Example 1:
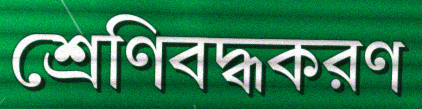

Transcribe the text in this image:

শ্রেণিবদ্ধকরণ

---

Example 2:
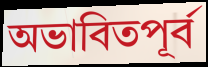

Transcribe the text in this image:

অভাবিতপূর্ব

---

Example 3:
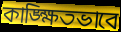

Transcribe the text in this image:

কাঙ্ক্ষিতভাবে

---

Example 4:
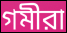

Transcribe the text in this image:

গমীরা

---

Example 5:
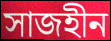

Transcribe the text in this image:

সাজহীন